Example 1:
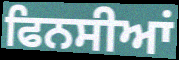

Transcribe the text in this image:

ਫਿਨਸੀਆਂ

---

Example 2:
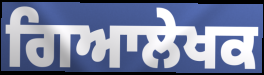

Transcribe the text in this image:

ਗਿਆਲੇਖਕ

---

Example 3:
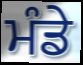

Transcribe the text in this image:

ਮੰਡੇ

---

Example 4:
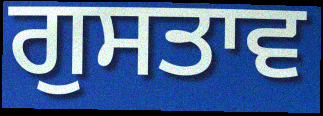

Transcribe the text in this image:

ਗੁਸਤਾਵ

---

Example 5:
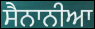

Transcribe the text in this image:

ਸੈਨਾਨੀਆ